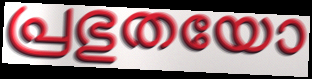
പ്രഭുതയോ